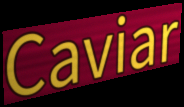
Caviar